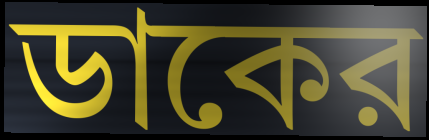
ডাকের